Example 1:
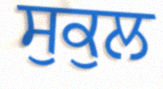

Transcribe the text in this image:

ਸੁਕੁਲ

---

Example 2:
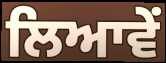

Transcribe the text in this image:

ਲਿਆਵੇਂ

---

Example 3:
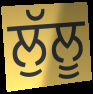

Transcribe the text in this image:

ਲੁੱਲੂ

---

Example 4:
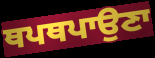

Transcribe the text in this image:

ਥਪਥਪਾਉਣਾ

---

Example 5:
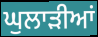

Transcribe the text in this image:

ਘੁਲਾੜੀਆਂ